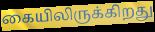
கையிலிருக்கிறது